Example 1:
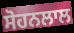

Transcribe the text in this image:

ਸੋਹਨਲਾਲ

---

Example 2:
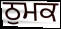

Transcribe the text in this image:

ਠੁਮਕ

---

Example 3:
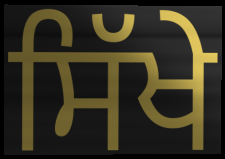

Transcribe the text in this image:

ਸਿੱਖੇ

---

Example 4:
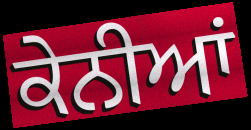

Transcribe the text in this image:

ਕੇਨੀਆਂ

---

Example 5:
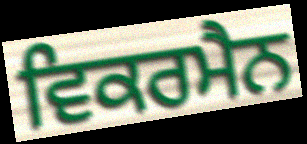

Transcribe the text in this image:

ਵਿਕਰਮੈਨ